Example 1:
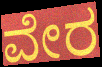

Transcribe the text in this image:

ವೇರ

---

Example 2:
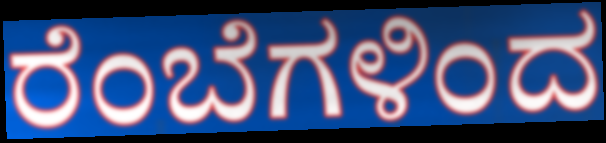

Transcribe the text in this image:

ರೆಂಬೆಗಳಿಂದ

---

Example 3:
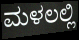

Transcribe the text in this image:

ಮಳಲಲ್ಲಿ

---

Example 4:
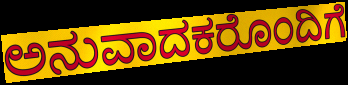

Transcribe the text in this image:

ಅನುವಾದಕರೊಂದಿಗೆ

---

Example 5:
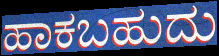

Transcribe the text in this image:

ಹಾಕಬಹುದು